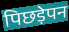
पिछड़ेपन